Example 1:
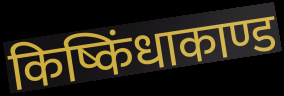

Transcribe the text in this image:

किष्किंधाकाण्ड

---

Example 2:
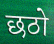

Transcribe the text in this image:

छठो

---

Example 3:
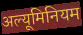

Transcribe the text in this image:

अल्यूमिनियम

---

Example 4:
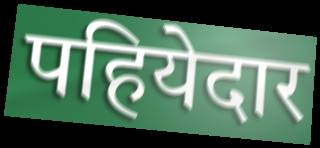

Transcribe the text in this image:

पहियेदार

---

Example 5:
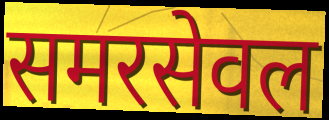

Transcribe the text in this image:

समरसेवल